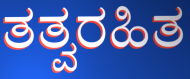
ತತ್ವರಹಿತ